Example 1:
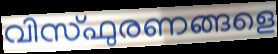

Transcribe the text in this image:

വിസ്ഫുരണങ്ങളെ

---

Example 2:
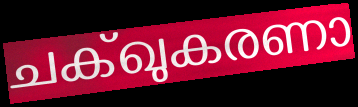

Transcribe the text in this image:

ചക്ഖുകരണാ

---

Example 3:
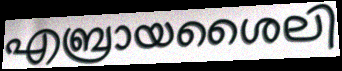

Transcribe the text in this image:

എബ്രായശൈലി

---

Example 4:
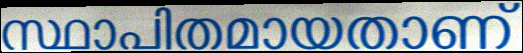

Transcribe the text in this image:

സ്ഥാപിതമായതാണ്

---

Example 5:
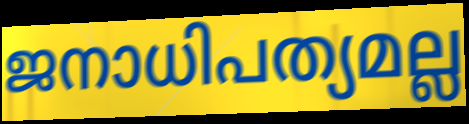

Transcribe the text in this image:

ജനാധിപത്യമല്ല